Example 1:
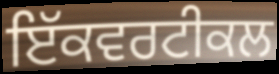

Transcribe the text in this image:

ਇੱਕਵਰਟੀਕਲ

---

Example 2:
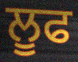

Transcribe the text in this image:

ਲੂਫ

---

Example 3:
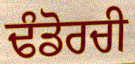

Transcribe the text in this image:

ਢੰਡੋਰਚੀ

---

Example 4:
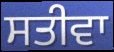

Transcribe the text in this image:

ਸਤੀਵਾ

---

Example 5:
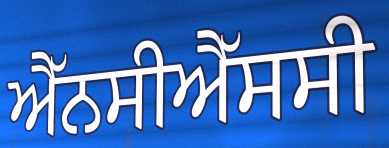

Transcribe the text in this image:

ਐੱਨਸੀਐੱਸਸੀ